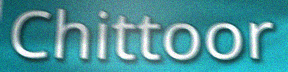
Chittoor